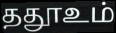
ததூஉம்